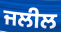
ਜਲੀਲ